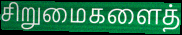
சிறுமைகளைத்